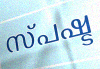
സ്‌പഷ്ട